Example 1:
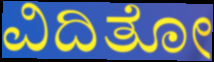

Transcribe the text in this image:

ವಿದಿತೋ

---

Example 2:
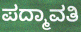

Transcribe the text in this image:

ಪದ್ಮಾವತಿ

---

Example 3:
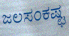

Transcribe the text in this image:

ಜಲಸಂಕಷ್ಟ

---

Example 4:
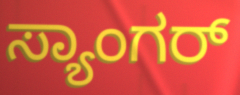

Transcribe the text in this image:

ಸ್ಯಾಂಗರ್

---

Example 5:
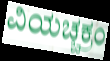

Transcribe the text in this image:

ವಿಯಚ್ಚಕ್ರಂ